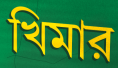
খিমার